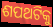
ଶପଥଟିକୁ